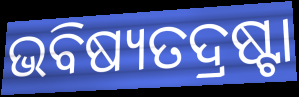
ଭବିଷ୍ୟତଦ୍ରଷ୍ଟା